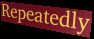
Repeatedly